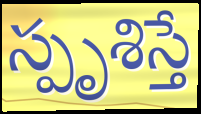
స్పృశిస్తే